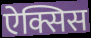
ऐक्सिस